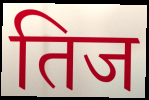
तिज